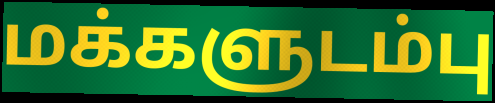
மக்களுடம்பு